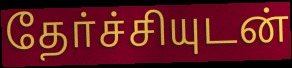
தேர்ச்சியுடன்